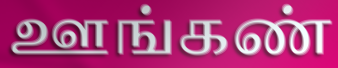
ஊங்கண்